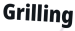
Grilling